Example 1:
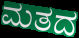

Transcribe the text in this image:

ಮತದ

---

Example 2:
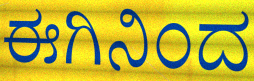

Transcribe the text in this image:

ಈಗಿನಿಂದ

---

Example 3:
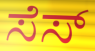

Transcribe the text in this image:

ಸೆಸ್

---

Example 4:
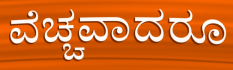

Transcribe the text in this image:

ವೆಚ್ಚವಾದರೂ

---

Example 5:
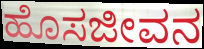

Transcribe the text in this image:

ಹೊಸಜೀವನ